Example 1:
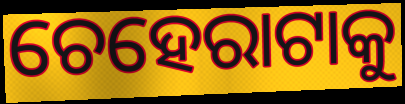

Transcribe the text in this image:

ଚେହେରାଟାକୁ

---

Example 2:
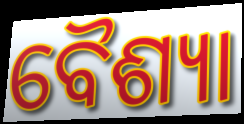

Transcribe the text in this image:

ବୈଶ୍ଯା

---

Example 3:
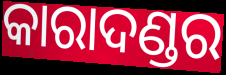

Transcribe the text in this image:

କାରାଦଣ୍ଡର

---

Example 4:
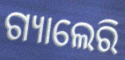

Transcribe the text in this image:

ଗ୍ୟାଲେରି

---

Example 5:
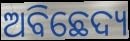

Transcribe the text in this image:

ଅବିଛେଦ୍ୟ